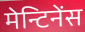
मेन्टिनेंस